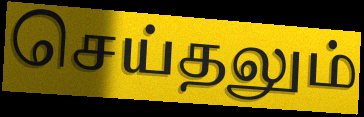
செய்தலும்